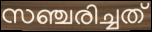
സഞ്ചരിച്ചത്